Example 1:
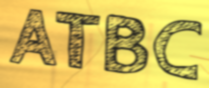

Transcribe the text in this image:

ATBC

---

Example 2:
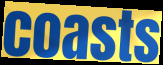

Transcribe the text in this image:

coasts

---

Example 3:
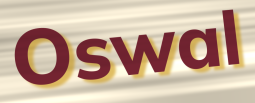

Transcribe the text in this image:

Oswal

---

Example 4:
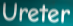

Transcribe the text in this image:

Ureter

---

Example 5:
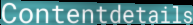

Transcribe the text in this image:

Contentdetails